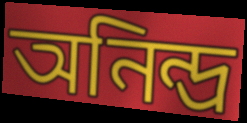
অনিন্দ্র